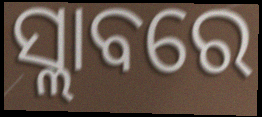
ସ୍ଲାବରେ